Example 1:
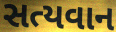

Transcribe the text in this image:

સત્યવાન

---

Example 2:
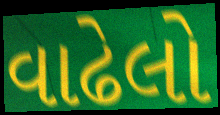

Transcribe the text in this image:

વાઢેલો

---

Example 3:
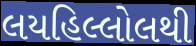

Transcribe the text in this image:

લયહિલ્લોલથી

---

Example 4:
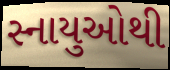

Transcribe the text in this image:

સ્નાયુઓથી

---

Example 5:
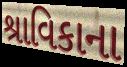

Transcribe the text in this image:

શ્રાવિકાના